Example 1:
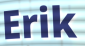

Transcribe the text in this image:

Erik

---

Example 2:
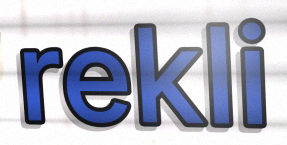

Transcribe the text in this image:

rekli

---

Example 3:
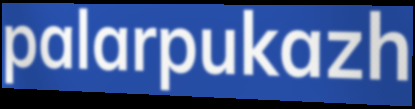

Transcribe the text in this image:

palarpukazh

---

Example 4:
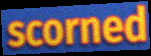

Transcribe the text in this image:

scorned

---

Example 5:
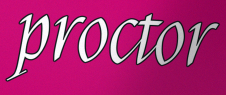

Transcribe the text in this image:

proctor